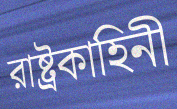
রাষ্ট্রকাহিনী